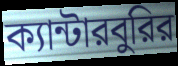
ক্যান্টারবুরির